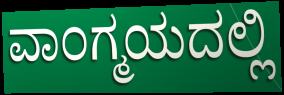
ವಾಂಗ್ಮಯದಲ್ಲಿ